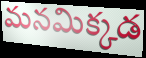
మనమిక్కడ